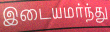
இடையமர்ந்து